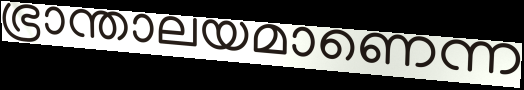
ഭ്രാന്താലയമാണെന്ന